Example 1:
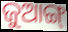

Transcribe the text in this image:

ଜୁଆଙ୍ଗ୍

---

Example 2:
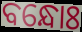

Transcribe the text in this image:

ବନ୍ଧୋଃ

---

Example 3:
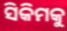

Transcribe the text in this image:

ସିକିମକୁ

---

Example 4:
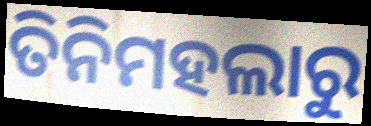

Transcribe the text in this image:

ତିନିମହଲାରୁ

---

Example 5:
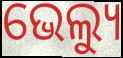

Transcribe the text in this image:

ଭେଲ୍ୟୁ